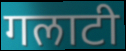
गलाटी